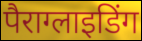
पैराग्लाइडिंग